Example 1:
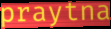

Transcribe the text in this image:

praytna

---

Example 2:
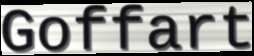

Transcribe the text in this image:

Goffart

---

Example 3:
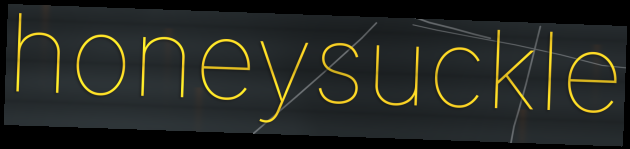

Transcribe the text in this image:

honeysuckle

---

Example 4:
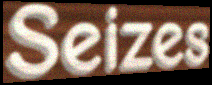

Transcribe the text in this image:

Seizes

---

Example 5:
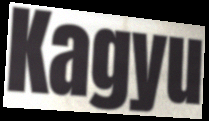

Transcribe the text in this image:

Kagyu